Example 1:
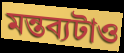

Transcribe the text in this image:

মন্তব্যটাও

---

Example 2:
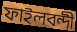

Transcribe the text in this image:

ফাইলবন্দী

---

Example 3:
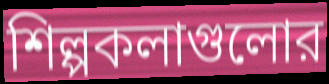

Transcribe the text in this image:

শিল্পকলাগুলোর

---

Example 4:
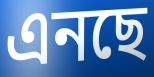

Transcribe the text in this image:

এনছে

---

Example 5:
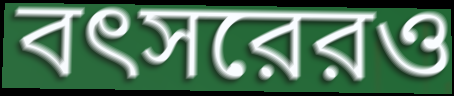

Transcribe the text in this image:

বৎসরেরও